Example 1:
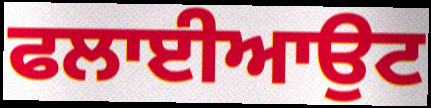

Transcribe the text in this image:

ਫਲਾਈਆਉਟ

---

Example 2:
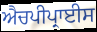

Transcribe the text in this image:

ਐਚਪੀਪ੍ਰਾਈਸ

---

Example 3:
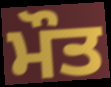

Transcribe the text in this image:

ਮੌਤ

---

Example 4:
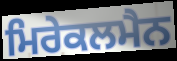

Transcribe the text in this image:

ਮਿਰੇਕਲਮੈਨ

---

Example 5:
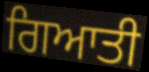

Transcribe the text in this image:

ਗਿਆਤੀ